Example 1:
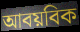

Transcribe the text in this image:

আবয়বিক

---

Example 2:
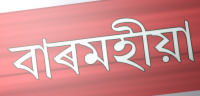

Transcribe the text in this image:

বাৰমহীয়া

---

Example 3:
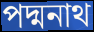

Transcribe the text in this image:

পদ্মনাথ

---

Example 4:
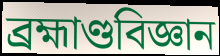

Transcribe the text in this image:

ব্ৰহ্মাণ্ডবিজ্ঞান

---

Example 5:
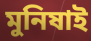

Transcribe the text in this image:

মুনিষাই